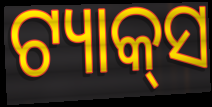
ଟ୍ୟାକ୍‌ସ